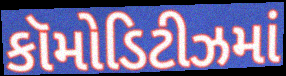
કૉમોડિટીઝમાં